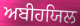
ਅਬੀਹਯਿਲ